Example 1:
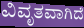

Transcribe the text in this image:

ವಿವೃತವಾಗಿದೆ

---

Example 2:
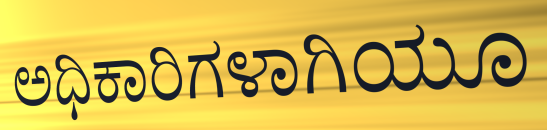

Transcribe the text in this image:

ಅಧಿಕಾರಿಗಳಾಗಿಯೂ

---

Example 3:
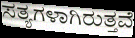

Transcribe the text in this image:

ಸತ್ಯಗಳಾಗಿರುತ್ತವೆ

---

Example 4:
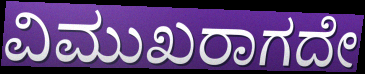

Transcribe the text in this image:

ವಿಮುಖರಾಗದೇ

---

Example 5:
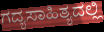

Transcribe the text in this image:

ಗದ್ಯಸಾಹಿತ್ಯದಲ್ಲಿ